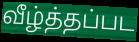
வீழ்த்தப்பட